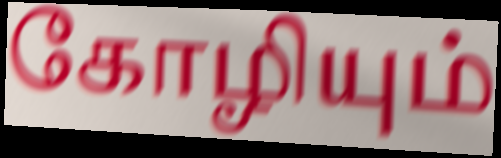
கோழியும்